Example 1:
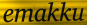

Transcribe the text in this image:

emakku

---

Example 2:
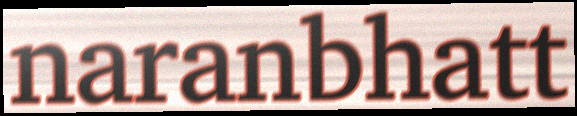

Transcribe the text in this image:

naranbhatt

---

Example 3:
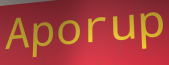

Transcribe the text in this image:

Aporup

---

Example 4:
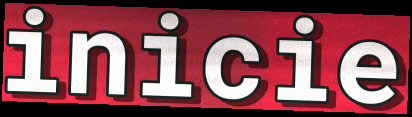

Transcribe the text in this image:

inicie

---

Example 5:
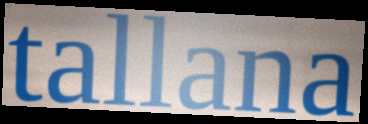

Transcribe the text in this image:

tallana